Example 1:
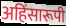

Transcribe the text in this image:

अहिंसारूपी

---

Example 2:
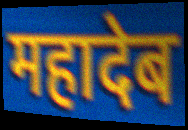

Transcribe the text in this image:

महादेब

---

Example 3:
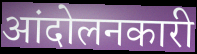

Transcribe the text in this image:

आंदोलनकारी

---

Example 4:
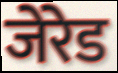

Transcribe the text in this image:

जेरेड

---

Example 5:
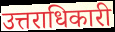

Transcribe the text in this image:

उत्तराधिकारी